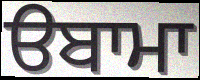
ੳਬਾਮਾ